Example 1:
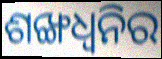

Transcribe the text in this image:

ଶଙ୍ଖଧ୍ବନିର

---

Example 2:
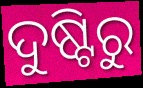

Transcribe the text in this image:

ଦୁଷ୍ଟିରୁ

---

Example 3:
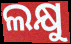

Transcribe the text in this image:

ଲକ୍ଷୁ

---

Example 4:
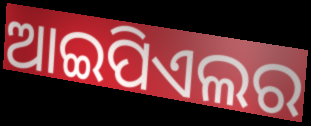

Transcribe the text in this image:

ଆଇପିଏଲର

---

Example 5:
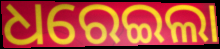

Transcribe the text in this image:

ଧରେଇଲା